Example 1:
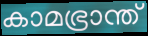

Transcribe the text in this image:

കാമഭ്രാന്ത്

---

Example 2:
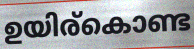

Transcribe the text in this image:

ഉയിര്കൊണ്ട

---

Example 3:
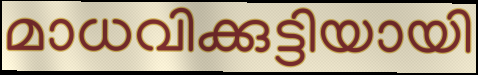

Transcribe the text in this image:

മാധവിക്കുട്ടിയായി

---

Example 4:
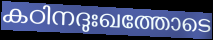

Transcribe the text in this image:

കഠിനദുഃഖത്തോടെ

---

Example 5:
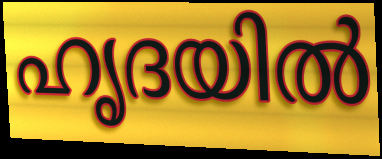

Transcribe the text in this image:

ഹൃദയിൽ